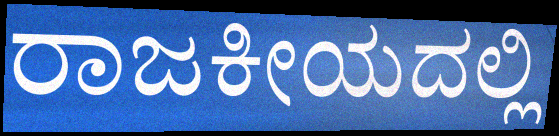
ರಾಜಕೀಯದಲ್ಲಿ